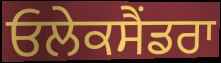
ਓਲੇਕਸੈਂਡਰਾ